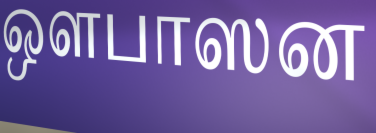
ஒளபாஸன